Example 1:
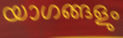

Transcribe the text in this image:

യാഗങ്ങളും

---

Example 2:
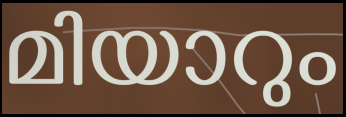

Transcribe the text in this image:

മിയാറും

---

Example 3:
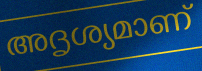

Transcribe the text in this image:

അദൃശ്യമാണ്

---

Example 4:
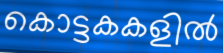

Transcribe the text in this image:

കൊട്ടകകളിൽ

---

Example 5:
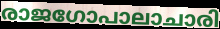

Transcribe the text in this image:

രാജഗോപാലാചാരി